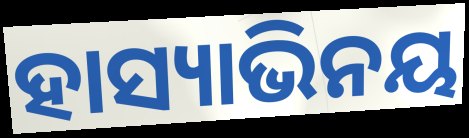
ହାସ୍ୟାଭିନୟ